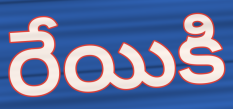
రేయికి